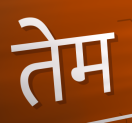
तेम